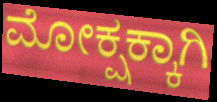
ಮೋಕ್ಷಕ್ಕಾಗಿ